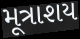
મૂત્રાશય